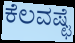
ಕೆಲವಷ್ಟೆ